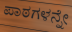
ಪಾಠಗಳನ್ನೇ